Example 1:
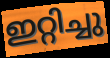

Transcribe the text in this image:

ഇറ്റിച്ചു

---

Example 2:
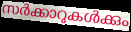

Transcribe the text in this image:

സർക്കാറുകൾക്കും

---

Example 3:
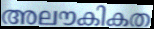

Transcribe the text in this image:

അലൗകികത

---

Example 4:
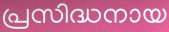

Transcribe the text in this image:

പ്രസിദ്ധനായ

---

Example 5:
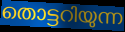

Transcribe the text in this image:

തൊട്ടറിയുന്ന